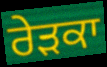
ਰੇੜਕਾ